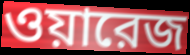
ওয়ারেজ